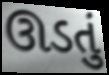
ઊડતું